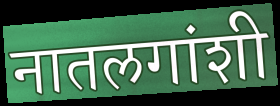
नातलगांशी